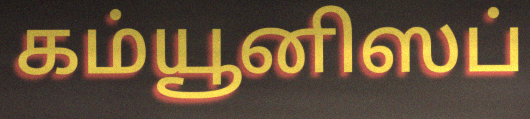
கம்யூனிஸப்